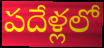
పదేళ్లలో